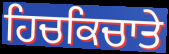
ਹਿਚਕਿਚਾਤੇ